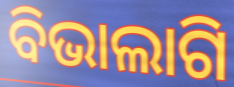
ବିଭାଲାଗି